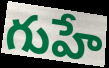
గుహే